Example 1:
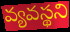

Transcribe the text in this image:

వ్యవస్థని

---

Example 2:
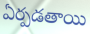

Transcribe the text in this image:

ఏర్పడతాయి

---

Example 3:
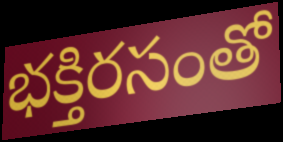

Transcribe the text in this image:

భక్తిరసంతో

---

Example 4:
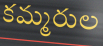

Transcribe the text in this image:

కమ్మరుల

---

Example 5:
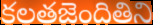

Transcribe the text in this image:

కలతజెందితిని